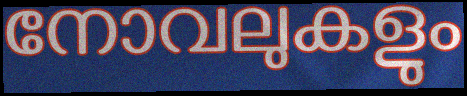
നോവലുകളും